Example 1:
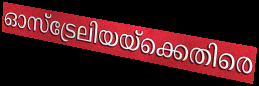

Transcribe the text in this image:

ഓസ്ട്രേലിയയ്ക്കെതിരെ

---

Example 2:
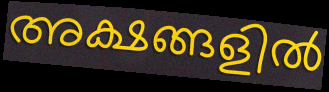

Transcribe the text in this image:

അക്ഷങ്ങളിൽ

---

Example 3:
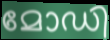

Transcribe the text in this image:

മോഡി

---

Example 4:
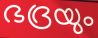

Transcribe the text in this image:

ഭദ്രയും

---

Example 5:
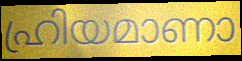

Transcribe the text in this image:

ഹ്രിയമാണാ